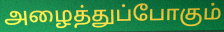
அழைத்துப்போகும்